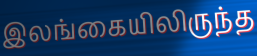
இலங்கையிலிருந்த